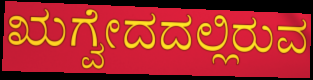
ಋಗ್ವೇದದಲ್ಲಿರುವ